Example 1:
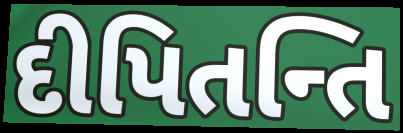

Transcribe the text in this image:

દીપિતન્તિ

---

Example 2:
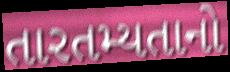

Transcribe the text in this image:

તારતમ્યતાનો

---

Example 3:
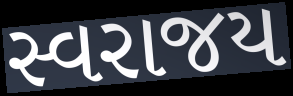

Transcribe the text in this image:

સ્વરાજય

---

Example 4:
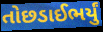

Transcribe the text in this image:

તોછડાઈભર્યું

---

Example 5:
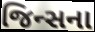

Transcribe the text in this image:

જિન્સના